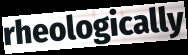
rheologically